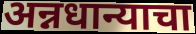
अन्नधान्याचा